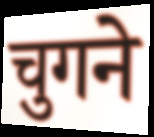
चुगने